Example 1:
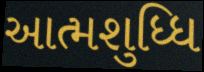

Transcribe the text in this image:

આત્મશુધ્ધિ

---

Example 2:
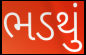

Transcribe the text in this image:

ભડથું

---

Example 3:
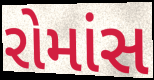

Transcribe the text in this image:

રોમાંસ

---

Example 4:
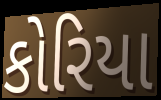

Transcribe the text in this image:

કોરિયા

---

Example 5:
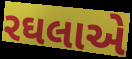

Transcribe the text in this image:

રઘલાએ